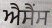
ਐਸੈਂਸ